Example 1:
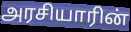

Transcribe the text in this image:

அரசியாரின்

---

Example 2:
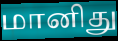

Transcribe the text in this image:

மானிது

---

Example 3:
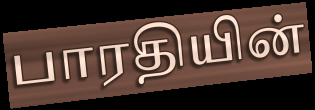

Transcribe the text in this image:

பாரதியின்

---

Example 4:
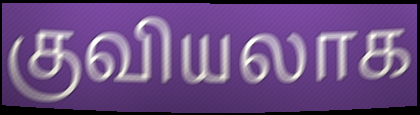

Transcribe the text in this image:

குவியலாக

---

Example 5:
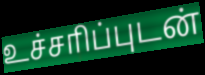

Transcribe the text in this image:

உச்சரிப்புடன்